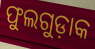
ଫୁଲଗୁଡ଼ାକ